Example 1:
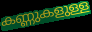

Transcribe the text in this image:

കണ്ണുകളുള്ള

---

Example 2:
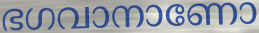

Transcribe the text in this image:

ഭഗവാനാണോ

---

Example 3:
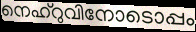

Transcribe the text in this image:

നെഹ്റുവിനോടൊപ്പം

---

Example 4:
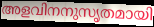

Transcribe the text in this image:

അളവിനനുസൃതമായി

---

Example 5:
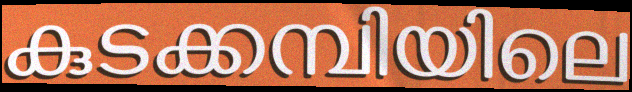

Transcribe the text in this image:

കുടക്കമ്പിയിലെ